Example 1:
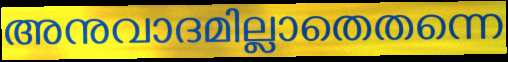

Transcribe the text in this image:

അനുവാദമില്ലാതെതന്നെ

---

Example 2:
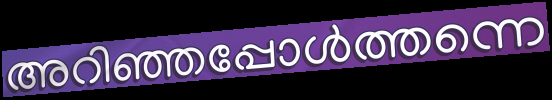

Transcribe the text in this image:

അറിഞ്ഞപ്പോൾത്തന്നെ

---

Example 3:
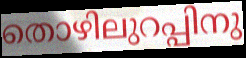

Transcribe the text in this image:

തൊഴിലുറപ്പിനു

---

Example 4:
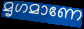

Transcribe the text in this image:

മൃഗമാണേ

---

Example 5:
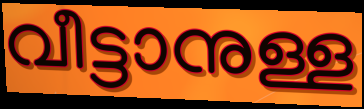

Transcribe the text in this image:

വീട്ടാനുള്ള